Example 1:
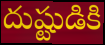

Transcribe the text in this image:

దుష్టుడికి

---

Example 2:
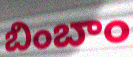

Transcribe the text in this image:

బింబాం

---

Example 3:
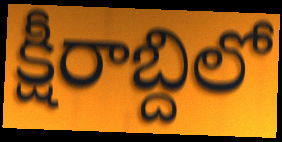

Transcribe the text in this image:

క్షీరాబ్దిలో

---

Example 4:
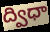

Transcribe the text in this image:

ద్విధా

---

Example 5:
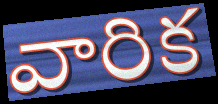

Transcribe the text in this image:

వారిక